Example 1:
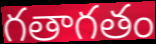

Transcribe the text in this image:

గతాగతం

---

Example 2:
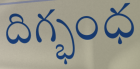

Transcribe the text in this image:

దిగ్భంధ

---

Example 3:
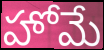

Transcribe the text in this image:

హోమే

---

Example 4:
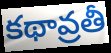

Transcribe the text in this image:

కథావ్రతీ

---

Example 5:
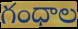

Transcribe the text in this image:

గంధాల